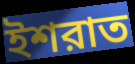
ইশরাত